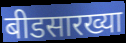
बीडसारख्या